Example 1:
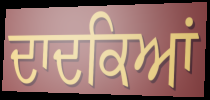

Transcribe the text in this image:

ਦਾਦਕਿਆਂ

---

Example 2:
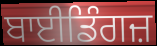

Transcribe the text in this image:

ਬਾਈਡਿੰਗਜ਼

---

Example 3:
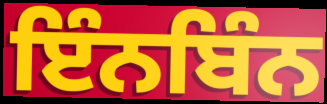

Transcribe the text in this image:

ਇੰਨਬਿੰਨ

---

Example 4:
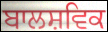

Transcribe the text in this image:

ਬਾਲਸ਼ਵਿਕ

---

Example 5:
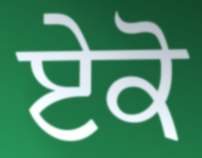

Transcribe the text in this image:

ਏਕੋ